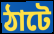
ঠাটে